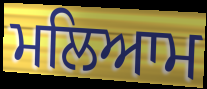
ਮਲਿਆਮ